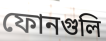
ফোনগুলি